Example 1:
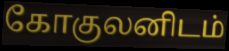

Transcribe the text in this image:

கோகுலனிடம்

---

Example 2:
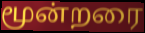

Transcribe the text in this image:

மூன்றரை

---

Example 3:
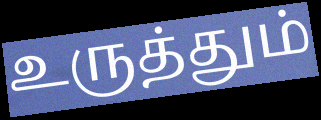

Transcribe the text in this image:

உருத்தும்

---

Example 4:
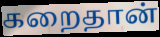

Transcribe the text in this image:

கறைதான்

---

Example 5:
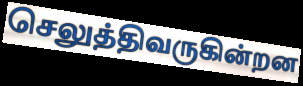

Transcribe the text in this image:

செலுத்திவருகின்றன